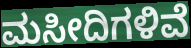
ಮಸೀದಿಗಳಿವೆ